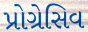
પ્રોગ્રેસિવ